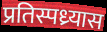
प्रतिस्पध्र्यास